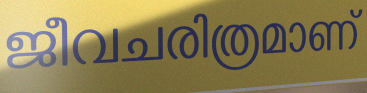
ജീവചരിത്രമാണ്